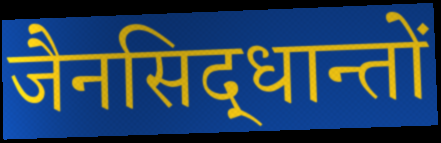
जैनसिद्धान्तों